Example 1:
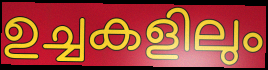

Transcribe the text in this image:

ഉച്ചകളിലും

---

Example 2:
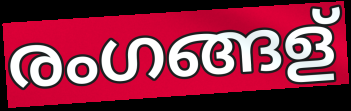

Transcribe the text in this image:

രംഗങ്ങള്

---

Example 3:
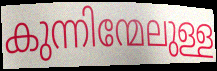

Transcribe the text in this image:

കുന്നിന്മേലുള്ള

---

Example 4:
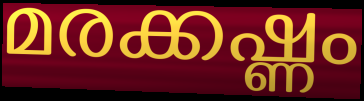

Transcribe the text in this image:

മരക്കഷ്ണം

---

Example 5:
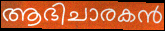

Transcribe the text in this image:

ആഭിചാരകൻ